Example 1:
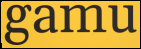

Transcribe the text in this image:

gamu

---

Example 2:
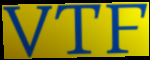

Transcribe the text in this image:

VTF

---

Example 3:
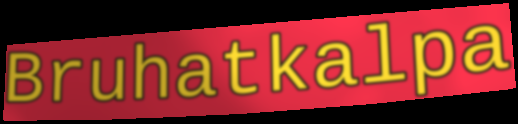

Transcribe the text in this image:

Bruhatkalpa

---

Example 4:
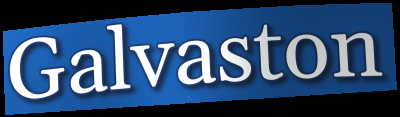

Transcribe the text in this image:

Galvaston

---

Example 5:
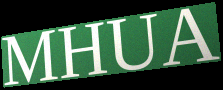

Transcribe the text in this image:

MHUA